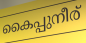
കൈപ്പുനീര്